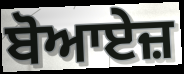
ਬੋਆਏਜ਼